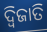
ଦ୍ୱିଜାତି